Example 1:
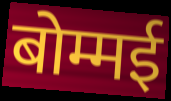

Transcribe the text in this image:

बोम्मई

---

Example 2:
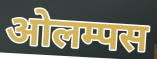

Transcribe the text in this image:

ओलम्पस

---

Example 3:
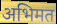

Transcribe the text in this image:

अभिमत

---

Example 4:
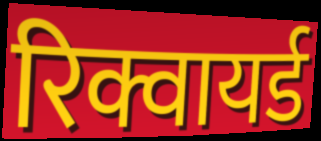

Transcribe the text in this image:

रिक्वायर्ड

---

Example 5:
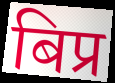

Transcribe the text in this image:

बिप्र